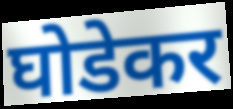
घोडेकर